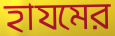
হাযমের